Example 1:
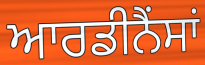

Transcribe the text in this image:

ਆਰਡੀਨੈਂਸਾਂ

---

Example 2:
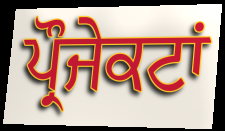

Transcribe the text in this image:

ਪ੍ਰੌਜੇਕਟਾਂ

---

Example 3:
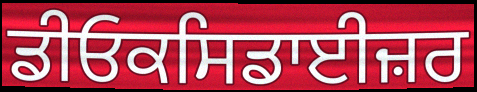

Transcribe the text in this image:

ਡੀਓਕਸਿਡਾਈਜ਼ਰ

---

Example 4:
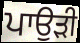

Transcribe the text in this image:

ਪਾਉੜੀ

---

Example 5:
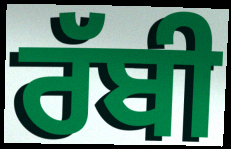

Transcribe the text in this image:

ਰੱਬੀ